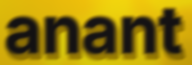
anant